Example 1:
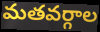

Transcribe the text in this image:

మతవర్గాల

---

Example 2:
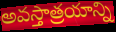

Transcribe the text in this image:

అవస్తాత్రయాన్ని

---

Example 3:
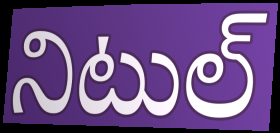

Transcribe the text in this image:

నిటుల్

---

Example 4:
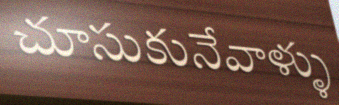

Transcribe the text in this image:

చూసుకునేవాళ్ళు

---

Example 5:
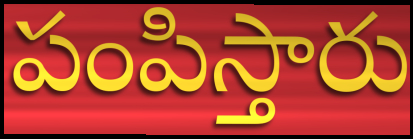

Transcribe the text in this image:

పంపిస్తారు